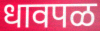
धावपळ